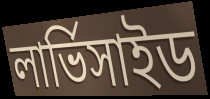
লার্ভিসাইড